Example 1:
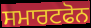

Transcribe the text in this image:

ਸਮਾਰਟਫੋਨ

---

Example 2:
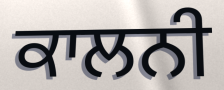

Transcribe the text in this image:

ਕਾਲਨੀ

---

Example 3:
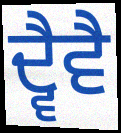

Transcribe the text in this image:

ਦ੍ਵੈਵੈ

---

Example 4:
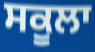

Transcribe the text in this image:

ਸਕੂਲਾ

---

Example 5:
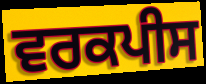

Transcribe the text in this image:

ਵਰਕਪੀਸ